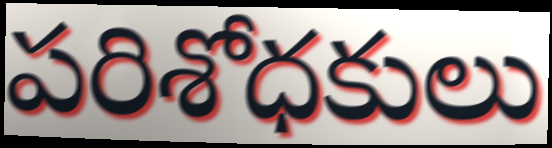
పరిశోధకులు